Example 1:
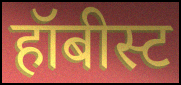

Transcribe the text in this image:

हॉबीस्ट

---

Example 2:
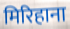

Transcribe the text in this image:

मिरिहाना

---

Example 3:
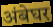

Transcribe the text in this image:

अंबेघर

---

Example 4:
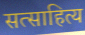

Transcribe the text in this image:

सत्साहित्य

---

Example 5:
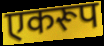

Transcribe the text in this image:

एकरूप